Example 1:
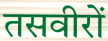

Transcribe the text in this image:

तसवीरों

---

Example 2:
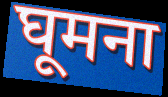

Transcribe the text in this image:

घूमना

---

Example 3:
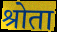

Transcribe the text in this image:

श्रोता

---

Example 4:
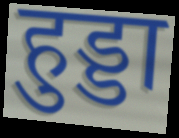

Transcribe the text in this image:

हुड्डा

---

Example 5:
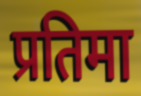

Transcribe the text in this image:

प्रतिमा